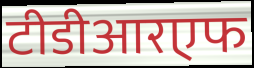
टीडीआरएफ